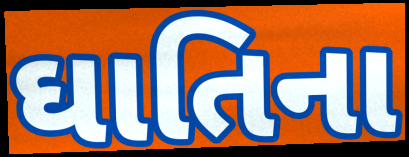
ઘાતિના